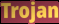
Trojan